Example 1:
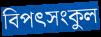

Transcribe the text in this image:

বিপৎসংকুল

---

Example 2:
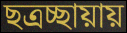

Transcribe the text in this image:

ছত্রচ্ছায়ায়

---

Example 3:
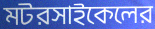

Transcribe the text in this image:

মটরসাইকেলের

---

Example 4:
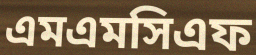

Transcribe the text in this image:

এমএমসিএফ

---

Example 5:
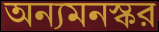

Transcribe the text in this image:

অন্যমনস্কর